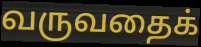
வருவதைக்